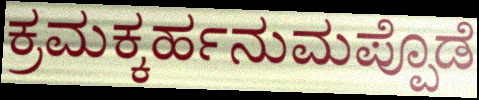
ಕ್ರಮಕ್ಕರ್ಹನುಮಪ್ಪೊಡೆ